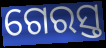
ଗେରସ୍ତ